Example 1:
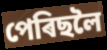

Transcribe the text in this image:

পেৰিছলৈ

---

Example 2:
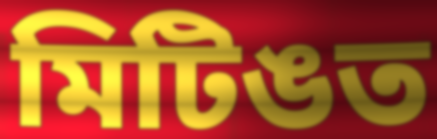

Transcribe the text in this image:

মিটিঙত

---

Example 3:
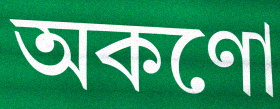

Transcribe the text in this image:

অকণো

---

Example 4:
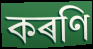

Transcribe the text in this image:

কৰণি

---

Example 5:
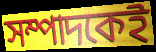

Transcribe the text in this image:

সম্পাদকেই